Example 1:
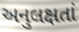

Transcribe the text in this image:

અનુલક્ષતાં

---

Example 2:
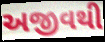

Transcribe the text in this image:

અજીવથી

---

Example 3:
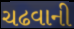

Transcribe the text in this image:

ચઢવાની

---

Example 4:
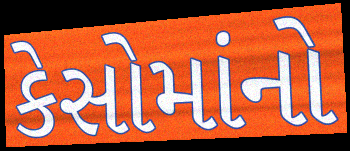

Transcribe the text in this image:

કેસોમાંનો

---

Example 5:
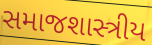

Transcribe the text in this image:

સમાજશાસ્ત્રીય